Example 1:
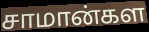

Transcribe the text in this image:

சாமான்கள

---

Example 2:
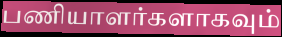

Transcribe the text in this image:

பணியாளர்களாகவும்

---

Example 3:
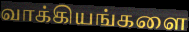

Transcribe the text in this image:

வாக்கியங்களை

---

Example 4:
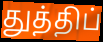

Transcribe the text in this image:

துத்திப்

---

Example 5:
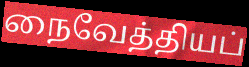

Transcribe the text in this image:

நைவேத்தியப்